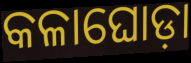
କଳାଘୋଡ଼ା